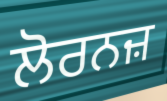
ਲੋਰਨਜ਼